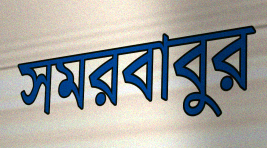
সমরবাবুর